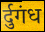
र्दुगंध